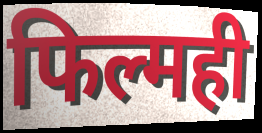
फिल्मही